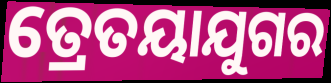
ତ୍ରେତୟାଯୁଗର